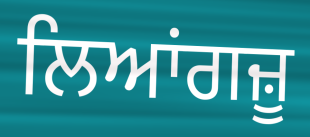
ਲਿਆਂਗਜ਼ੂ